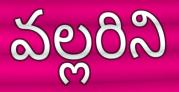
వల్లరిని